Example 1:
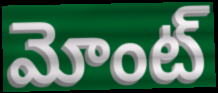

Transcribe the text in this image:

మోంట్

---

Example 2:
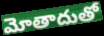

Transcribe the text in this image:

మోతాదుతో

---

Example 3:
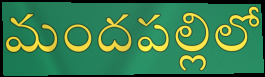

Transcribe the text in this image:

మందపల్లిలో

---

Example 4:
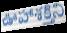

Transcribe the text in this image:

ఊహాశక్తిని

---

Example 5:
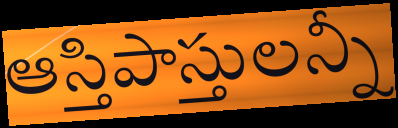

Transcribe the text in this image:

ఆస్తిపాస్తులన్నీ